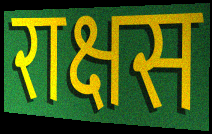
राक्षस